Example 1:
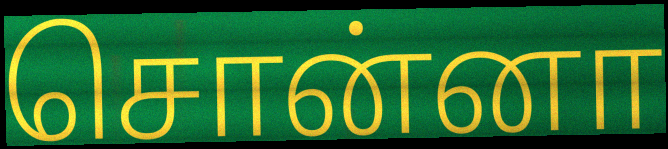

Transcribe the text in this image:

சொன்னா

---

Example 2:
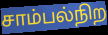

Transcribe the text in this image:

சாம்பல்நிற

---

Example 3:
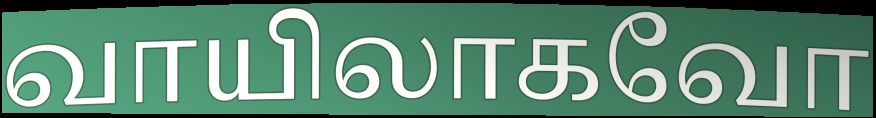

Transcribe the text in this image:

வாயிலாகவோ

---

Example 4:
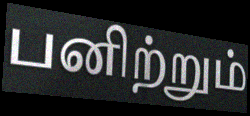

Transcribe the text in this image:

பனிற்றும்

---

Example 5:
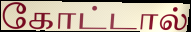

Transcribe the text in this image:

கோட்டால்